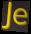
Je